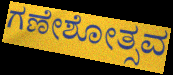
ಗಣೇಶೋತ್ಸವ